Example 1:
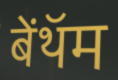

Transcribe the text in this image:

बेंथॅम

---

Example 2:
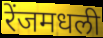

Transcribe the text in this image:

रेंजमधली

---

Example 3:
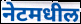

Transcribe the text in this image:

नेटमधील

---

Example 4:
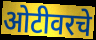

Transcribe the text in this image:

ओटीवरचे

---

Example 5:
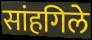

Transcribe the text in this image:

सांहगिले